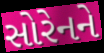
સોરેનને